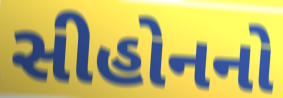
સીહોનનો